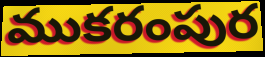
ముకరంపుర